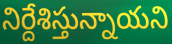
నిర్దేశిస్తున్నాయని